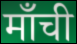
माँची